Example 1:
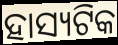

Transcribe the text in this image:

ହାସ୍ୟଟିକ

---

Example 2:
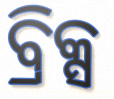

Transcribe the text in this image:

ବ୍ରିକ୍ସ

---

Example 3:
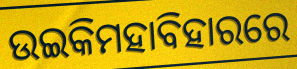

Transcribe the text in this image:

ଉଇକିମହାବିହାରରେ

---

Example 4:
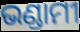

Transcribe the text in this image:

ଭଣ୍ଡାମୀ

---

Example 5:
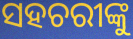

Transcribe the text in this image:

ସହଚରୀଙ୍କୁ